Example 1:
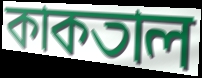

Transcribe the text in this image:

কাকতাল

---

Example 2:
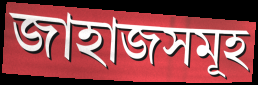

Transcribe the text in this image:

জাহাজসমূহ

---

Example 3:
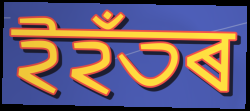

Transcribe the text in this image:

ইহঁতৰ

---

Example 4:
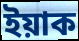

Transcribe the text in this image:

ইয়াক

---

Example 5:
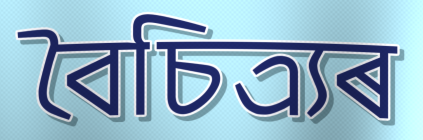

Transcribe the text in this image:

বৈচিত্ৰ্যৰ